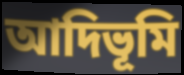
আদিভূমি